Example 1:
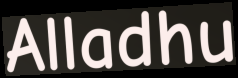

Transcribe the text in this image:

Alladhu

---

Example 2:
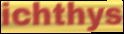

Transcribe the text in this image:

ichthys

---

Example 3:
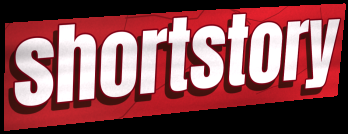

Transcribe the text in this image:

shortstory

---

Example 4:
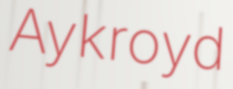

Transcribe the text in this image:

Aykroyd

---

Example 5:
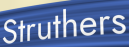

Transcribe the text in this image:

Struthers